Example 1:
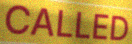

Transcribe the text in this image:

CALLED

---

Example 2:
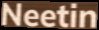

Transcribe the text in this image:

Neetin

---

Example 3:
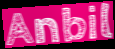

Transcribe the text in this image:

Anbil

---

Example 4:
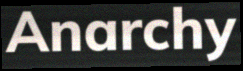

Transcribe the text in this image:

Anarchy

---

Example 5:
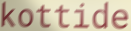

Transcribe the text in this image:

kottide